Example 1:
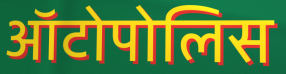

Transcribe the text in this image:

ऑटोपोलिस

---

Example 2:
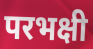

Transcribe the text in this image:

परभक्षी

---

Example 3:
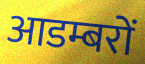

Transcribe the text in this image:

आडम्बरों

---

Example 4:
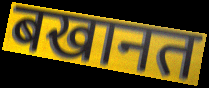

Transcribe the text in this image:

बखानत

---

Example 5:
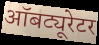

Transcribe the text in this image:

ऑबट्यूरेटर